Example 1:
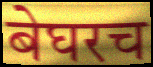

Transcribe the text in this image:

बेघरच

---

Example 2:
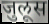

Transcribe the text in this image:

जुलूस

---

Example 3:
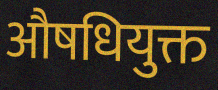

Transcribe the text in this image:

औषधियुक्त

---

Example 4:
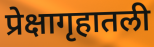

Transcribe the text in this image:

प्रेक्षागृहातली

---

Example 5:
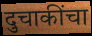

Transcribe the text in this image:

दुचाकींचा